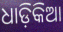
ଧାଡ଼ିକିଆ